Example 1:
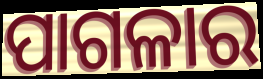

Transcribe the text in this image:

ପାଗଳାର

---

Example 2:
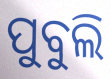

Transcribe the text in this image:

ପୁବୁଲି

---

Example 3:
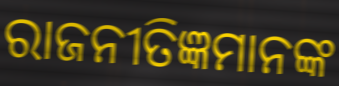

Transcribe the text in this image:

ରାଜନୀତିଜ୍ଞମାନଙ୍କ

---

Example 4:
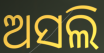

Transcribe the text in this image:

ଅସଲି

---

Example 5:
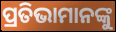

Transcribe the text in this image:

ପ୍ରତିଭାମାନଙ୍କୁ